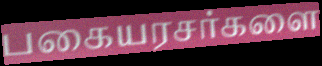
பகையரசர்களை